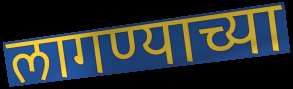
लागण्याच्या